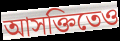
আসক্তিতেও